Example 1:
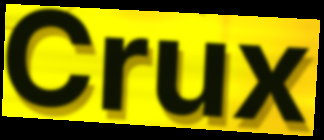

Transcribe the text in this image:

Crux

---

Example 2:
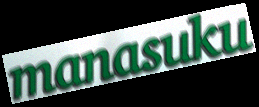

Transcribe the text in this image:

manasuku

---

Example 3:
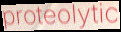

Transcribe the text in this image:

proteolytic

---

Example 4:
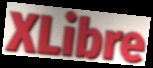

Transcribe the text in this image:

XLibre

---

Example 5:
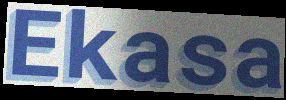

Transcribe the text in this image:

Ekasa